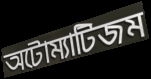
অটোম্যাটিজম